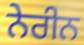
ਨੇਰੀਨ